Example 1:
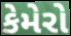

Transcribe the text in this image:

કેમેરો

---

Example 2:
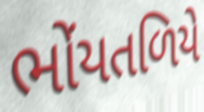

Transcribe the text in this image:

ભોંયતળિયે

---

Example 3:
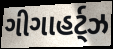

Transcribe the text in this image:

ગીગાહર્ટ્ઝ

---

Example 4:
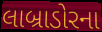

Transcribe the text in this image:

લાબ્રાડોરના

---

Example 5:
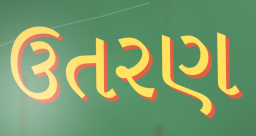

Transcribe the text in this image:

ઉતરણ